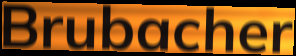
Brubacher